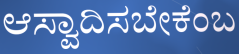
ಆಸ್ವಾದಿಸಬೇಕೆಂಬ